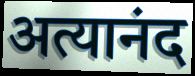
अत्यानंद